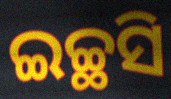
ଇଚ୍ଛସି